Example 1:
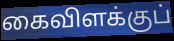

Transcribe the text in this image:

கைவிளக்குப்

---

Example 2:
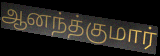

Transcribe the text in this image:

ஆனந்த்குமார்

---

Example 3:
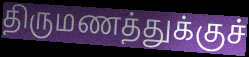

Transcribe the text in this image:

திருமணத்துக்குச்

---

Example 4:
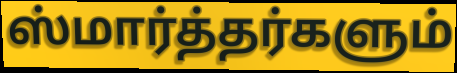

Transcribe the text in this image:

ஸ்மார்த்தர்களும்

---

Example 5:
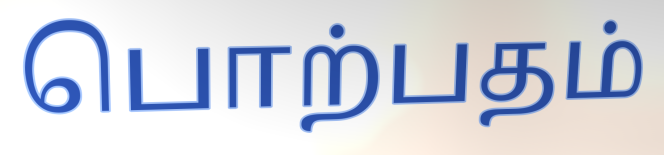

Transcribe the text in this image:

பொற்பதம்